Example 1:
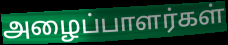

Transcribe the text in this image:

அழைப்பாளர்கள்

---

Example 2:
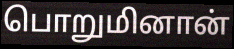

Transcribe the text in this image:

பொறுமினான்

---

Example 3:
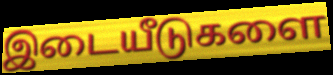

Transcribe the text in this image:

இடையீடுகளை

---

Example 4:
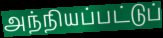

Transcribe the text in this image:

அந்நியப்பட்டுப்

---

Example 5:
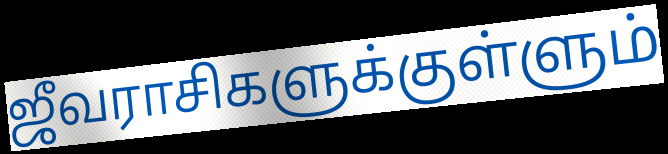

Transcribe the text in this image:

ஜீவராசிகளுக்குள்ளும்